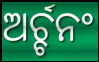
ଅର୍ଚ୍ଚନଂ